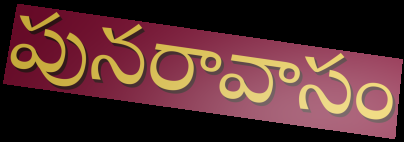
పునరావాసం